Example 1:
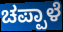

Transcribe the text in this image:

ಚಪ್ಪಾಳೆ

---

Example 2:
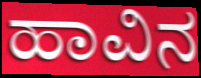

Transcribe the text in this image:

ಹಾವಿನ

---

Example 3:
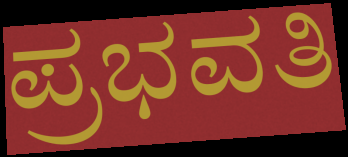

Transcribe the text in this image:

ಪ್ರಭವತಿ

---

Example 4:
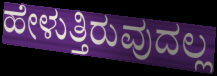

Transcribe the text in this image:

ಹೇಳುತ್ತಿರುವುದಲ್ಲ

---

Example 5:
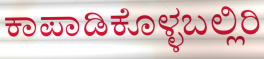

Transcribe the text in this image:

ಕಾಪಾಡಿಕೊಳ್ಳಬಲ್ಲಿರಿ